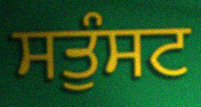
ਸਤੁੰਸਟ